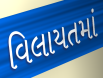
વિલાયતમાં